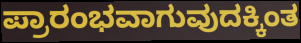
ಪ್ರಾರಂಭವಾಗುವುದಕ್ಕಿಂತ